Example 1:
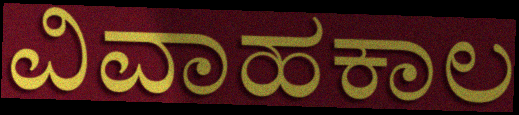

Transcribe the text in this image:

ವಿವಾಹಕಾಲ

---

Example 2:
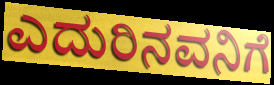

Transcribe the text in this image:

ಎದುರಿನವನಿಗೆ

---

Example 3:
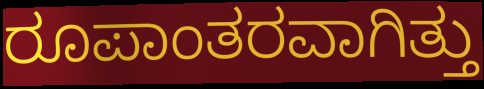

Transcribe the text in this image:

ರೂಪಾಂತರವಾಗಿತ್ತು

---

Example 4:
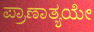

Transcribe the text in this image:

ಪ್ರಾಣಾತ್ಯಯೇ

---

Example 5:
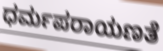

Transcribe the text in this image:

ಧರ್ಮಪರಾಯಣತೆ